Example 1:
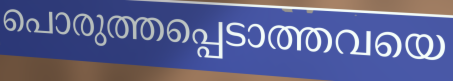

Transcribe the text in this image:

പൊരുത്തപ്പെടാത്തവയെ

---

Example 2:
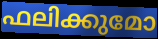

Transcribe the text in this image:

ഫലിക്കുമോ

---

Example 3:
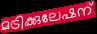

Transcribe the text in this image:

മട്രിക്കുലേഷന്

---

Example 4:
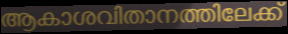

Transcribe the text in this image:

ആകാശവിതാനത്തിലേക്ക്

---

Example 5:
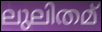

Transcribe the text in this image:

ലുലിതമ്